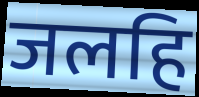
जलहि